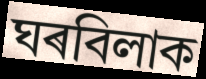
ঘৰবিলাক